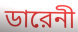
ডারেনী